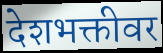
देशभक्तीवर